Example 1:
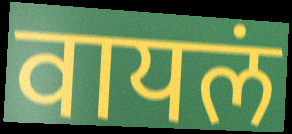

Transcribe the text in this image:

वायलं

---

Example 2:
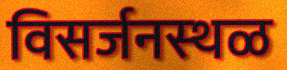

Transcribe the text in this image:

विसर्जनस्थळ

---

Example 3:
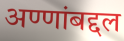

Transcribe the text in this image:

अण्णांबद्दल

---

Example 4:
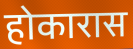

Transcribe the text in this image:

होकारास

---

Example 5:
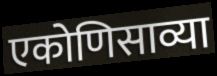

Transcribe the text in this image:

एकोणिसाव्या